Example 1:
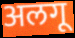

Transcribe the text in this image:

अलगू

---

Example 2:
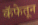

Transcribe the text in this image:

कॅफेतून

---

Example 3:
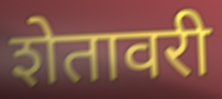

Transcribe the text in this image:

शेतावरी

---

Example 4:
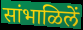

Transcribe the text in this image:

सांभाळिलें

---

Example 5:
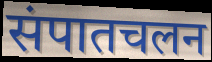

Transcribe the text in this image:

संपातचलन